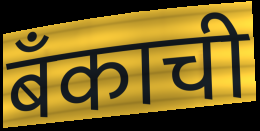
बँकाची